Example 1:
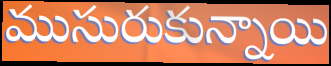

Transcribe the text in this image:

ముసురుకున్నాయి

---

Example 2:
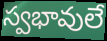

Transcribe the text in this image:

స్వభావులే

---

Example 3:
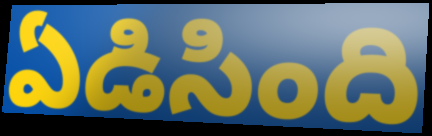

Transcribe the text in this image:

ఏడిసింది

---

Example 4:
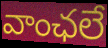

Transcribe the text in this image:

వాంఛలే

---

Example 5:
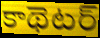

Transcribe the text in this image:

కాథెటర్